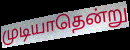
முடியாதென்று